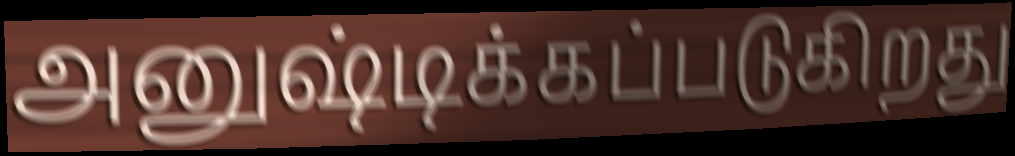
அனுஷ்டிக்கப்படுகிறது